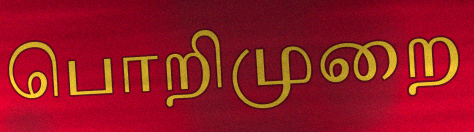
பொறிமுறை